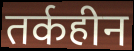
तर्कहीन